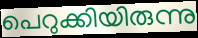
പെറുക്കിയിരുന്നു